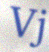
Vj